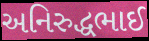
અનિરુદ્ધભાઈ